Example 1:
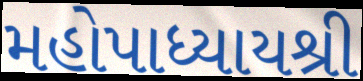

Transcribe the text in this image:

મહોપાધ્યાયશ્રી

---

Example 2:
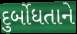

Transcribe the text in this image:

દુર્બોધતાને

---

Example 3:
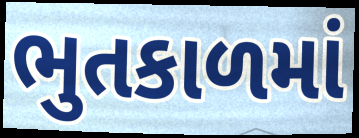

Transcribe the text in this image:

ભુતકાળમાં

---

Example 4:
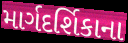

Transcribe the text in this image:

માર્ગદર્શિકાના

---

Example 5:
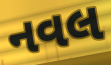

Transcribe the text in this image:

નવલ